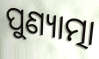
ପୁଣ୍ୟାତ୍ମା